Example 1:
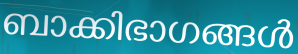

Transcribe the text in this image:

ബാക്കിഭാഗങ്ങൾ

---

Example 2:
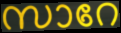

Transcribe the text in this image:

സാറേ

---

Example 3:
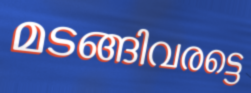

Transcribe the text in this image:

മടങ്ങിവരട്ടെ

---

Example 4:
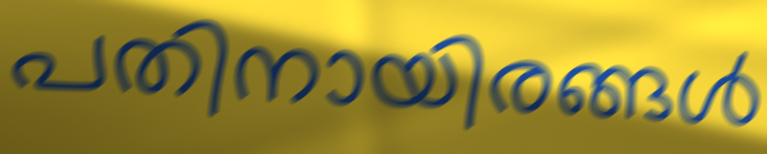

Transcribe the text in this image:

പതിനായിരങ്ങൾ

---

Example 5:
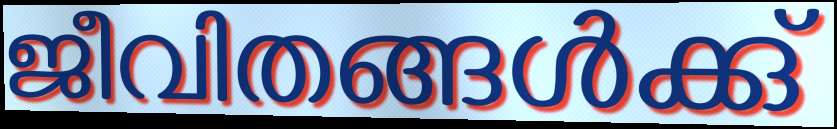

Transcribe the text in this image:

ജീവിതങ്ങൾക്കു്